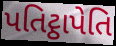
પતિટ્ઠાપેતિ